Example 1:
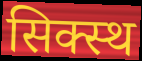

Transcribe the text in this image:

सिक्स्थ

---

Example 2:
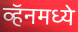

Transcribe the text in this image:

व्हॅनमध्ये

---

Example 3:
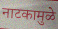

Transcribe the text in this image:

नाटकामुळे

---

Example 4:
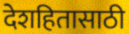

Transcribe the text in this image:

देशहितासाठी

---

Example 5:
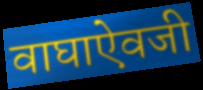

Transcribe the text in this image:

वाघाऐवजी